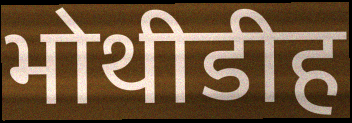
भोथीडीह